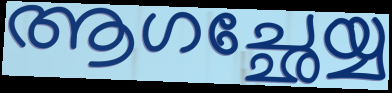
ആഗച്ഛേയ്യ